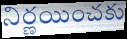
నిర్ణయించకు